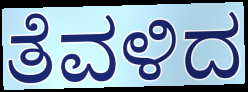
ತೆವಳಿದ